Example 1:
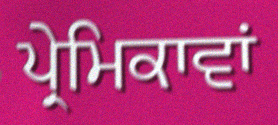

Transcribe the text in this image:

ਪ੍ਰੇਮਿਕਾਵਾਂ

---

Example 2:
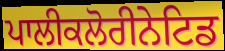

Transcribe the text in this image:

ਪਾਲੀਕਲੋਰੀਨੇਟਿਡ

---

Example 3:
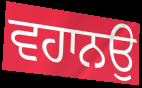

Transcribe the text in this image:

ਵਹਾਨਉ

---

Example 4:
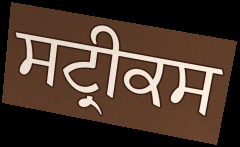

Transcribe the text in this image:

ਸਟ੍ਰੀਕਸ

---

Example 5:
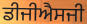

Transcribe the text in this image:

ਡੀਜੀਐਸਜੀ